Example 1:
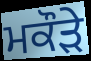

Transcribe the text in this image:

ਮਕੌੜੇ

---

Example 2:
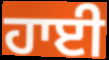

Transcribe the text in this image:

ਹਾਈ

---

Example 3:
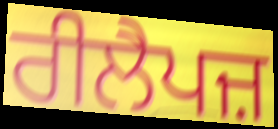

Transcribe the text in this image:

ਰੀਲੈਪਜ਼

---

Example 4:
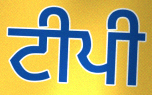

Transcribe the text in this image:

ਟੀਪੀ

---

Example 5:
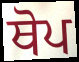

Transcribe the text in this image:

ਥੋਪ